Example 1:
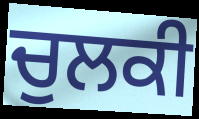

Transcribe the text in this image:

ਚੁਲਕੀ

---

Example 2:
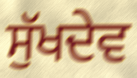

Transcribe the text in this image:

ਸੁੱਖਦੇਵ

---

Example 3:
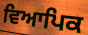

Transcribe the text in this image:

ਵਿਆਪਿਕ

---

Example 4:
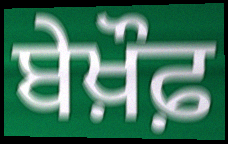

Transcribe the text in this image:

ਬੇਖ਼ੌਫ਼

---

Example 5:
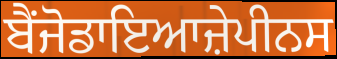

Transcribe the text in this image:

ਬੈਂਜੋਡਾਇਆਜ਼ੇਪੀਨਸ